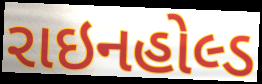
રાઇનહોલ્ડ